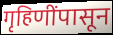
गृहिणींपासून